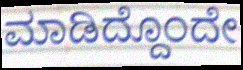
ಮಾಡಿದ್ದೊಂದೇ